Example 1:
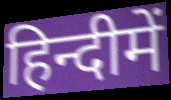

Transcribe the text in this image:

हिन्दीमें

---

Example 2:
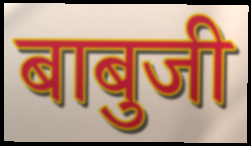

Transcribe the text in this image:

बाबुजी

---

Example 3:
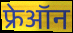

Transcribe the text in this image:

फ्रेऑन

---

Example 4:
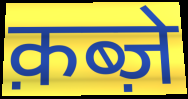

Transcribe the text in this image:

क़ब्ज़े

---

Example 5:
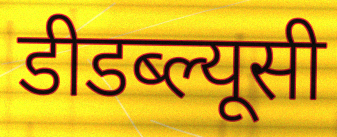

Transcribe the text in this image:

डीडब्ल्यूसी